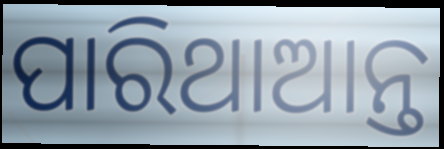
ପାରିଥାଆନ୍ତ